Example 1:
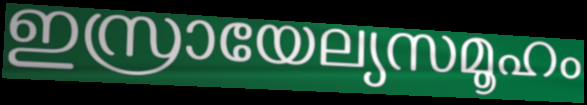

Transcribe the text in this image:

ഇസ്രായേല്യസമൂഹം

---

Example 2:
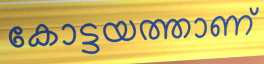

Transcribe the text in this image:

കോട്ടയത്താണ്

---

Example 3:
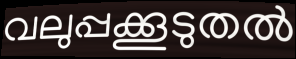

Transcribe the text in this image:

വലുപ്പക്കൂടുതൽ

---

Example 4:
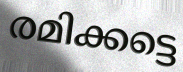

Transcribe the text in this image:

രമിക്കട്ടെ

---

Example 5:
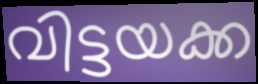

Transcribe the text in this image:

വിട്ടയക്ക